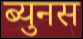
ब्युनस